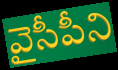
వైసీపీని